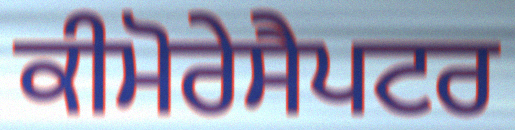
ਕੀਮੋਰੇਸੈਪਟਰ